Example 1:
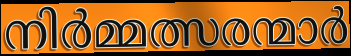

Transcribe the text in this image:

നിർമ്മത്സരന്മാർ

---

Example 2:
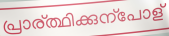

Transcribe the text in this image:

പ്രാര്ത്ഥിക്കുന്പോള്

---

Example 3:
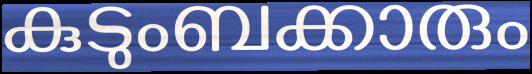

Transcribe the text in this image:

കുടുംബക്കാരും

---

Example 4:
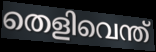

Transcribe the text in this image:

തെളിവെന്ത്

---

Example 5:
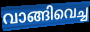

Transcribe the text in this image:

വാങ്ങിവെച്ച